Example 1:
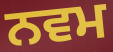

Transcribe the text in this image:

ਨਵਮ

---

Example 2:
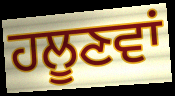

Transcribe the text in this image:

ਹਲੂਣਵਾਂ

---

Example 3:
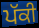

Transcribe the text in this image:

ਪੱਕੀ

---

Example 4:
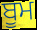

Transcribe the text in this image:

ਬੂਮ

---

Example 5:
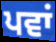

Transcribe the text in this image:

ਪਵਾਂ